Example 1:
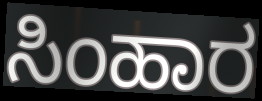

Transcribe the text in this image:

ಸಿಂಹಾರ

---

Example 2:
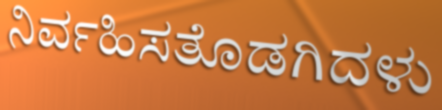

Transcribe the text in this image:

ನಿರ್ವಹಿಸತೊಡಗಿದಳು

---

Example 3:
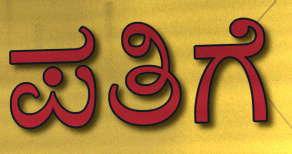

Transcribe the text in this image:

ಪತಿಗೆ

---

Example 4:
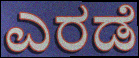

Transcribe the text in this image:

ಎರಡೆ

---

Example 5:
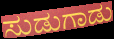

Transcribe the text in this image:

ಸುಡುಗಾಡು